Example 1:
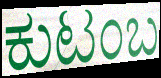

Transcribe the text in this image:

ಕುಟಂಬ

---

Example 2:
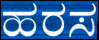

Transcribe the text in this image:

ಹರಸ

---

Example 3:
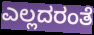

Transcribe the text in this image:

ಎಲ್ಲದರಂತೆ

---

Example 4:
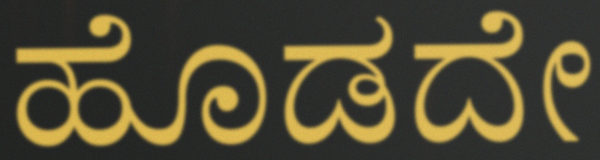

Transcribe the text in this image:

ಹೊಡದೇ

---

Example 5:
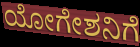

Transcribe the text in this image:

ಯೋಗೇಶನಿಗೆ